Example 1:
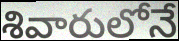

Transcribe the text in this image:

శివారులోనే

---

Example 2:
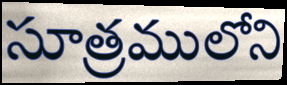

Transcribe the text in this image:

సూత్రములోని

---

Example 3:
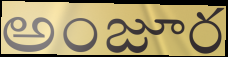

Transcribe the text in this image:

అంజూర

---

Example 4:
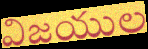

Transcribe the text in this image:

విజయుల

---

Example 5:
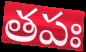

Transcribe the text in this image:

తపః